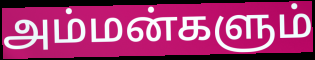
அம்மன்களும்